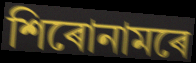
শিৰোনামৰে